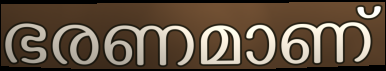
ഭരണമാണ്